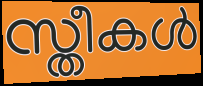
സ്തീകൾ